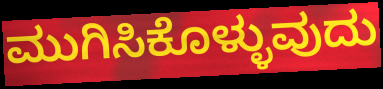
ಮುಗಿಸಿಕೊಳ್ಳುವುದು